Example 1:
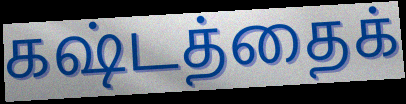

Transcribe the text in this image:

கஷ்டத்தைக்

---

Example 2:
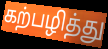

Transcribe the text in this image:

கற்பழித்து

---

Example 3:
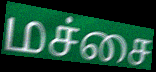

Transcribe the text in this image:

மச்சை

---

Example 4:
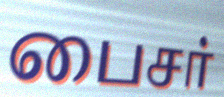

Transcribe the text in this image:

பைசர்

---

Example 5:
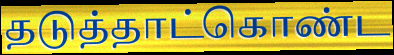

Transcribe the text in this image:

தடுத்தாட்கொண்ட